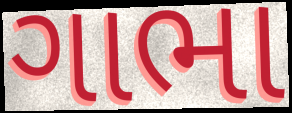
ગાભા